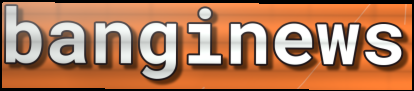
banginews